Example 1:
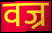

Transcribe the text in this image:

वज्र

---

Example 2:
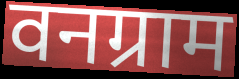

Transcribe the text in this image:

वनग्राम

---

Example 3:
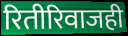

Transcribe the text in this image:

रितीरिवाजही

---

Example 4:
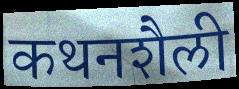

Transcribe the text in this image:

कथनशैली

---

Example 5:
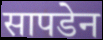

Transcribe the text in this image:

सापडेन